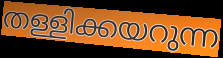
തള്ളിക്കയറുന്ന